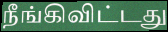
நீங்கிவிட்டது